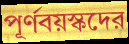
পূর্ণবয়স্কদের